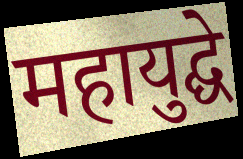
महायुद्घे